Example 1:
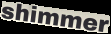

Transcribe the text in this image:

shimmer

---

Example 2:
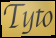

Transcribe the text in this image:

Tyto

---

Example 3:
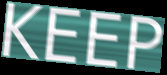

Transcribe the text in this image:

KEEP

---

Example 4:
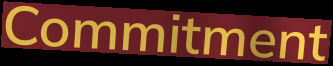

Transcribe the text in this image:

Commitment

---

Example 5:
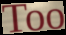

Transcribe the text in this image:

Too